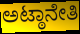
ಅಟ್ಠಾನೇತಿ